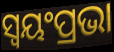
ସ୍ଵୟଂପ୍ରଭା